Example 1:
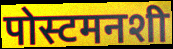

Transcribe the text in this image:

पोस्टमनशी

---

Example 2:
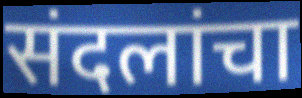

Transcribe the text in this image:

संदलांचा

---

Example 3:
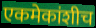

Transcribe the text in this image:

एकमेकांशीच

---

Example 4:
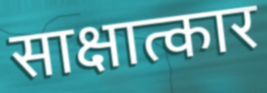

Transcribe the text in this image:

साक्षात्कार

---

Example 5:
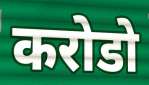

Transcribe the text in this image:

करोडो